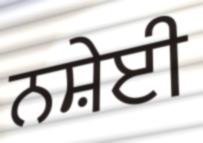
ਨਸ਼ੇਈ